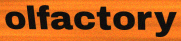
olfactory